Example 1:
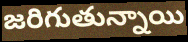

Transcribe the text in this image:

జరిగుతున్నాయి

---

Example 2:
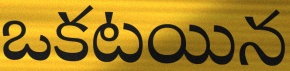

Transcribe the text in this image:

ఒకటయిన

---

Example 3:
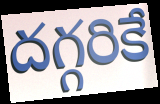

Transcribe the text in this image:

దగ్గరికే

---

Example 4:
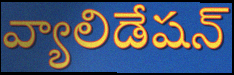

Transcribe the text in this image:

వ్యాలిడేషన్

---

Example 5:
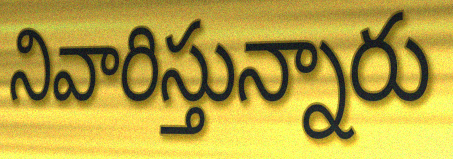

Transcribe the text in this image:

నివారిస్తున్నారు